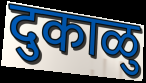
दुकाळु